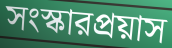
সংস্কারপ্রয়াস